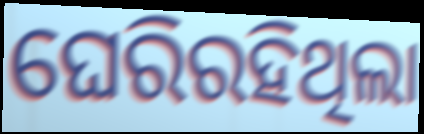
ଘେରିରହିଥିଲା